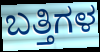
ಬತ್ತಿಗಳ